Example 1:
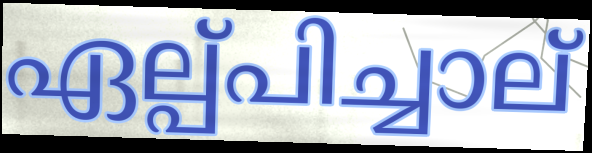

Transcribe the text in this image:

ഏല്പ്പിച്ചാല്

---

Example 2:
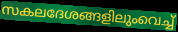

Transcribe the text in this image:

സകലദേശങ്ങളിലുംവെച്ച്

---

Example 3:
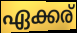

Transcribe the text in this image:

ഏക്കര്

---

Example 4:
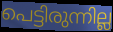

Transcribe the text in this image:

പെട്ടിരുന്നില്ല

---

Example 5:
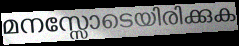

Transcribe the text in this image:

മനസ്സോടെയിരിക്കുക